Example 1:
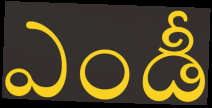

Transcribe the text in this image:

ఎండీ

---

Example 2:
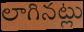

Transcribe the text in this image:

లాగినట్లు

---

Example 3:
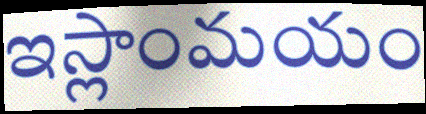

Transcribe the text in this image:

ఇస్లాంమయం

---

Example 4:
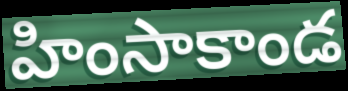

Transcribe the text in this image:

హింసాకాండ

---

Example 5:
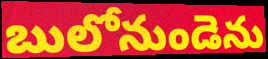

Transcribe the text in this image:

బులోనుండెను